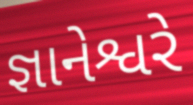
જ્ઞાનેશ્વરે